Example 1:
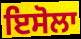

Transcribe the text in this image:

ਇਸੋਲਾ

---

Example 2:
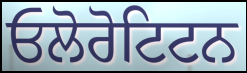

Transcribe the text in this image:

ਓਲੋਰੋਟਿਟਨ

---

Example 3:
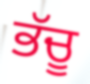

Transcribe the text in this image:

ਭੱਚੂ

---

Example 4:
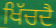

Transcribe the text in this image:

ਖਿੱਚਦੈ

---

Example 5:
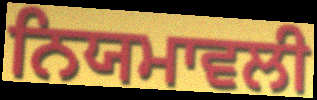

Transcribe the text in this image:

ਨਿਯਮਾਵਲੀ